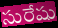
సురేషు